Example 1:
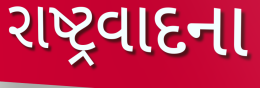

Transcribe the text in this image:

રાષ્ટ્રવાદના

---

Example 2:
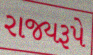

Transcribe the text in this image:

રાજ્યરૂપે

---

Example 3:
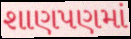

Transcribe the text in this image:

શાણપણમાં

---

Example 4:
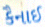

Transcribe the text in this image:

કૈનાઈ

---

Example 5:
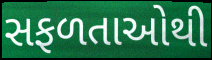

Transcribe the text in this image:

સફળતાઓથી